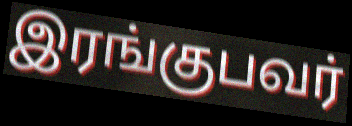
இரங்குபவர்